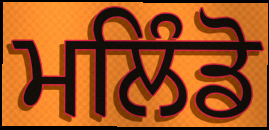
ਮਲਿੰਡੋ